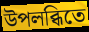
উপলব্ধিতে